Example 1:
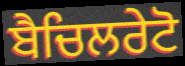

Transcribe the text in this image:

ਬੈਚਿਲਰੇਟੋ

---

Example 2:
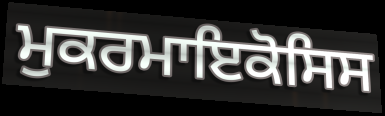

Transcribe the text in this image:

ਮੁਕਰਮਾਇਕੋਸਿਸ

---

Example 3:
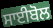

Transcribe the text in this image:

ਸਾਈਬੋਲ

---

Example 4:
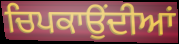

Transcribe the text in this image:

ਚਿਪਕਾਉਂਦੀਆਂ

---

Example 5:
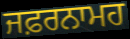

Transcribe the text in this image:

ਜਫ਼ਰਨਾਮਹ